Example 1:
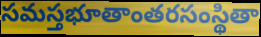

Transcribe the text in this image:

సమస్తభూతాంతరసంస్థితా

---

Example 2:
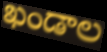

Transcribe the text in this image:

ఖండాల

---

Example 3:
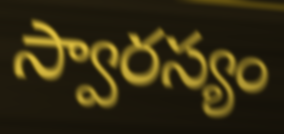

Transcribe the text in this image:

స్వారస్యం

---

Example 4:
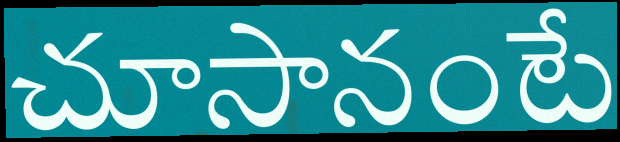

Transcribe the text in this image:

చూసానంటే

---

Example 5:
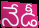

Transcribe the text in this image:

నేడీ